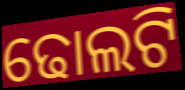
ଢୋଲଟି